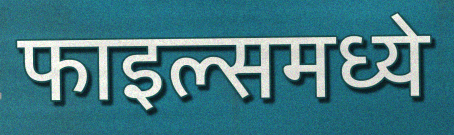
फाइल्समध्ये